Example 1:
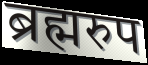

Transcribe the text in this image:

ब्रह्मरुप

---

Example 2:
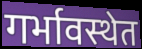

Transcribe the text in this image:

गर्भावस्थेत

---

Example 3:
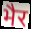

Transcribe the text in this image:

भैर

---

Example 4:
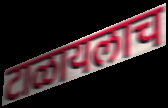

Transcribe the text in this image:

टाळायलाच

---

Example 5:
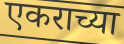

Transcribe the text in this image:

एकराच्या